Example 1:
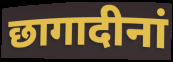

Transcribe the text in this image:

छागादीनां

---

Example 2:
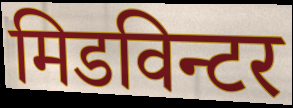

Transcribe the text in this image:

मिडविन्टर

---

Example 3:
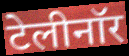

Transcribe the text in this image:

टेलीनॉर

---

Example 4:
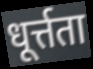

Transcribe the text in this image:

धूर्त्तता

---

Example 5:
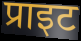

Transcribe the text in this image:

प्राइट